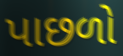
પાછળો